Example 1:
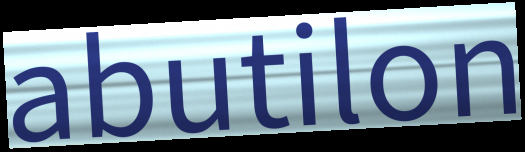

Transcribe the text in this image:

abutilon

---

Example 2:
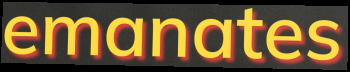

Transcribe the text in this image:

emanates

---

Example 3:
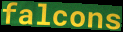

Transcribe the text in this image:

falcons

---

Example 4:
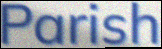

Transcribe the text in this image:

Parish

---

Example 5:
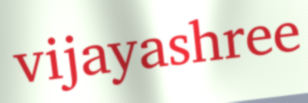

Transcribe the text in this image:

vijayashree